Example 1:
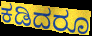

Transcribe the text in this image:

ಕಡಿದರೂ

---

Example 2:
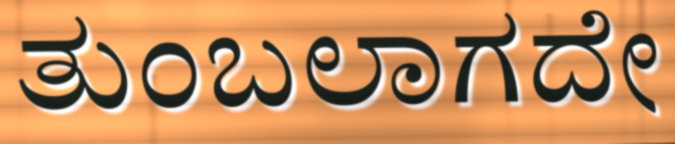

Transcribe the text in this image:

ತುಂಬಲಾಗದೇ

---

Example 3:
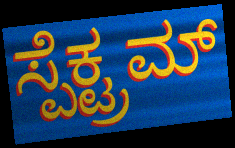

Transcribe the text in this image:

ಸ್ಪೆಕ್ಟ್ರಮ್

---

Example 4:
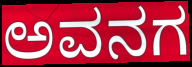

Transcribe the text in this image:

ಅವನಗ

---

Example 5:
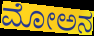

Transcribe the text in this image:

ಮೋಅನ